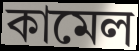
কামেল